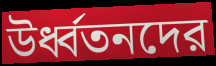
উর্ধ্বতনদের